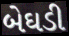
બેઘડી